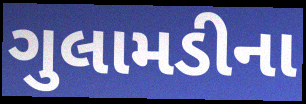
ગુલામડીના